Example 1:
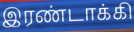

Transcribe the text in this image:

இரண்டாக்கி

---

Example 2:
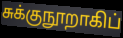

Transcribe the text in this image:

சுக்குநூறாகிப்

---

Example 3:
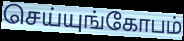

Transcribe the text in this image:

செய்யுங்கோபம்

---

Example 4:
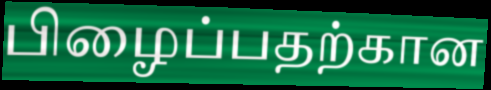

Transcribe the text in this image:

பிழைப்பதற்கான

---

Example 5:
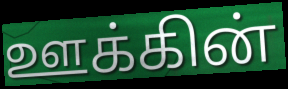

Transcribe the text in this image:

ஊக்கின்